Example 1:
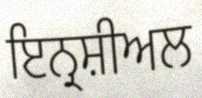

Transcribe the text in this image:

ਇਨ੍ਰਸ਼ੀਅਲ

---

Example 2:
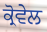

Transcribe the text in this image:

ਕ੍ਰੋਵੇਲ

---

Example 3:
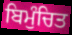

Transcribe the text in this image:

ਬਿਮੁੰਚਿਤ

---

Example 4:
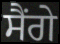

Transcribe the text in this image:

ਸੈਂਗੇ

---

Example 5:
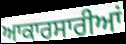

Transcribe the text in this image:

ਆਕਾਰਸਾਰੀਆਂ